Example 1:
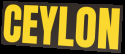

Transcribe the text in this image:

CEYLON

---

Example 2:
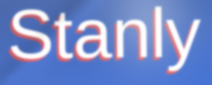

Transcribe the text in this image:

Stanly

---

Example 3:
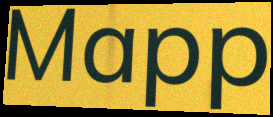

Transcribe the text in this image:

Mapp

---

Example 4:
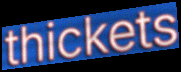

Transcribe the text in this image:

thickets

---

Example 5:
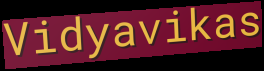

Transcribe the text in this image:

Vidyavikas